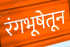
रंगभूषेतून